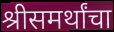
श्रीसमर्थांचा